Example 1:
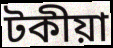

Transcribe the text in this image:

টকীয়া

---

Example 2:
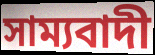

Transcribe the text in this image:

সাম্যবাদী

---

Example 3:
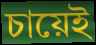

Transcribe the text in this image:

চায়েই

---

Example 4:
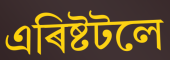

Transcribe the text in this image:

এৰিষ্টটলে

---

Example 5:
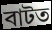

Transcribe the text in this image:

বাটত